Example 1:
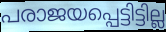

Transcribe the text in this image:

പരാജയപ്പെട്ടിട്ടില്ല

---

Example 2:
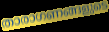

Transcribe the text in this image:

താരാഗണങ്ങളുടെ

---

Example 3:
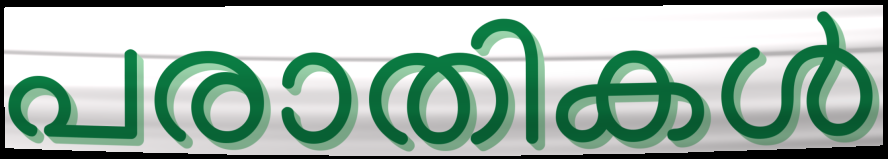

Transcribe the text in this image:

പരാതികൾ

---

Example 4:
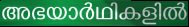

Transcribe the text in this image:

അഭയാർഥികളിൽ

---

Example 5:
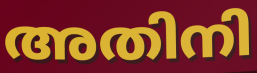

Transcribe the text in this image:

അതിനി